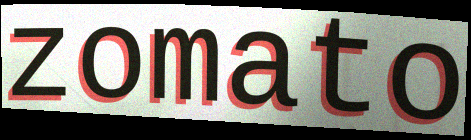
zomato